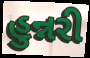
હુન્નરી